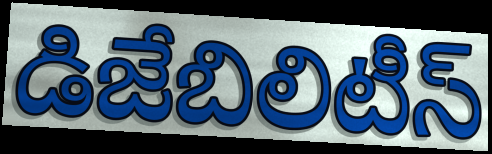
డిజేబిలిటీస్